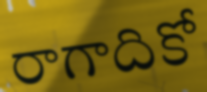
రాగాదికో